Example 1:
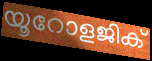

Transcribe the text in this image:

യൂറോളജിക്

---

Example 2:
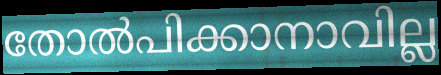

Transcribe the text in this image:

തോൽപിക്കാനാവില്ല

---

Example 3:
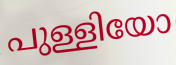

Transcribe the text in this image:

പുള്ളിയോ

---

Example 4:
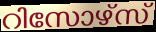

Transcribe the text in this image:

റിസോഴ്സ്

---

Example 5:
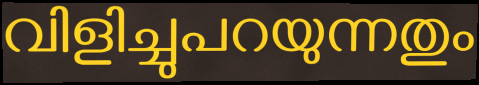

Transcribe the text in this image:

വിളിച്ചുപറയുന്നതും